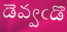
డెవ్వఁడొ